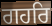
ਗਹਰਿ